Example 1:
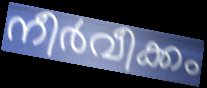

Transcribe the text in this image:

നീർവീക്കം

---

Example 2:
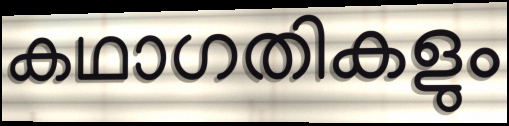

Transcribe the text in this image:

കഥാഗതികളും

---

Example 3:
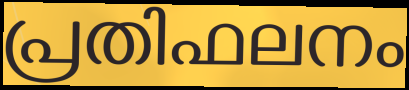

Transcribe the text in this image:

പ്രതിഫലനം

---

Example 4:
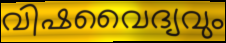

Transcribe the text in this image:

വിഷവൈദ്യവും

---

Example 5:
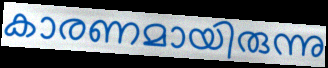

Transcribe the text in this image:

കാരണമായിരുന്നു